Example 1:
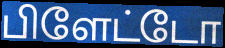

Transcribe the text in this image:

பிளேட்டோ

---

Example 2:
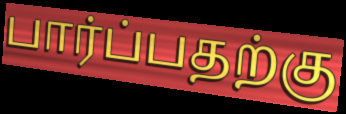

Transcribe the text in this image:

பார்ப்பதற்கு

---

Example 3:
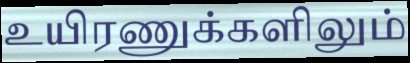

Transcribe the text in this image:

உயிரணுக்களிலும்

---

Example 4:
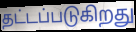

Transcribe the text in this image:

தட்டப்படுகிறது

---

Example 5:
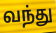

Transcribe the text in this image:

வந்து